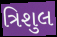
ત્રિશુલ